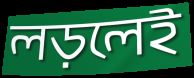
লড়লেই